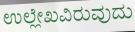
ಉಲ್ಲೇಖವಿರುವುದು